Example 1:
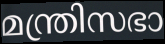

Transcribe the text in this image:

മന്ത്രിസഭാ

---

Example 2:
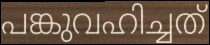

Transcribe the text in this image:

പങ്കുവഹിച്ചത്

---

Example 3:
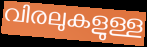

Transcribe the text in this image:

വിരലുകളുള്ള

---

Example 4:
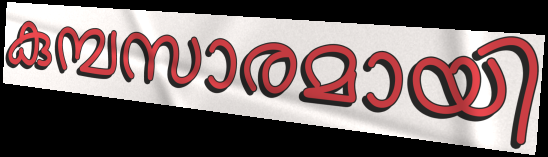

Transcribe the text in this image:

കുമ്പസാരമായി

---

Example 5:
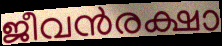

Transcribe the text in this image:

ജീവൻരക്ഷാ